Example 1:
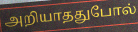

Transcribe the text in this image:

அறியாததுபோல்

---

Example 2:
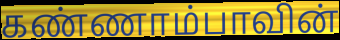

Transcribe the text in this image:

கண்ணாம்பாவின்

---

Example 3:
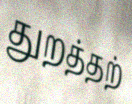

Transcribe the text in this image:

துறத்தற்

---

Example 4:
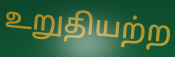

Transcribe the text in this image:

உறுதியற்ற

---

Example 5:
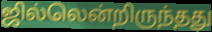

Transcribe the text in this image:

ஜில்லென்றிருந்தது